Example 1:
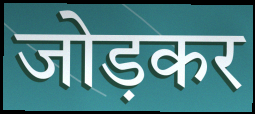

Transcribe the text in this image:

जोड़कर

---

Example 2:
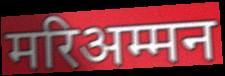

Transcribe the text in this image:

मरिअम्मन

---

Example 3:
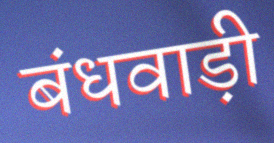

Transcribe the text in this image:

बंधवाड़ी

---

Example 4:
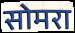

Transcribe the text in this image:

सोमरा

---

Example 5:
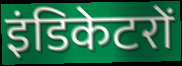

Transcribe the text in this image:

इंडिकेटरों